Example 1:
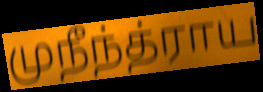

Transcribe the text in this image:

முநீந்த்ராய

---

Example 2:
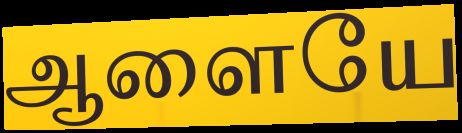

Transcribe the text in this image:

ஆளையே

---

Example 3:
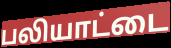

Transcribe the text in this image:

பலியாட்டை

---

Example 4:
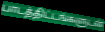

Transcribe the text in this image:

பாடத்திட்டங்களுடன்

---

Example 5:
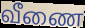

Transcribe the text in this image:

வீணை